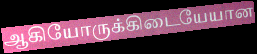
ஆகியோருக்கிடையேயான